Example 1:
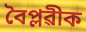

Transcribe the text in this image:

বৈপ্লৱীক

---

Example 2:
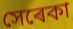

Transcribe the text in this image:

সেৰেকা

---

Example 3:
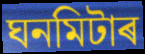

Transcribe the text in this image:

ঘনমিটাৰ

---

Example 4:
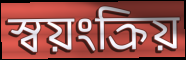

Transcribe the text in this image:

স্বয়ংক্ৰিয়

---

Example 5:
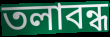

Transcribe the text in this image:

তলাবন্ধ